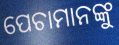
ପେଚାମାନଙ୍କୁ